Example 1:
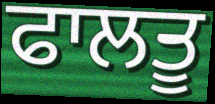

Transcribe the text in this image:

ਫਾਲਤੂ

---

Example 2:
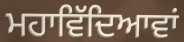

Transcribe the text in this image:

ਮਹਾਵਿੱਦਿਆਵਾਂ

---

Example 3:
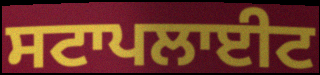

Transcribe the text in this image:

ਸਟਾਪਲਾਈਟ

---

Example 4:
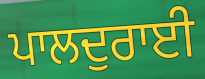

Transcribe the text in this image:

ਪਾਲਦੁਰਾਈ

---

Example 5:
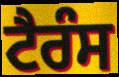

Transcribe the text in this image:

ਟੈਰੰਸ